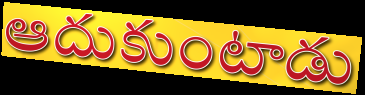
ఆదుకుంటాడు